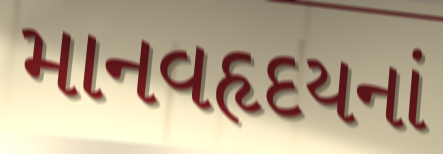
માનવહૃદયનાં